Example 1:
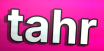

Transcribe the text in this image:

tahr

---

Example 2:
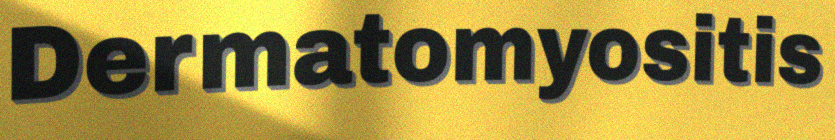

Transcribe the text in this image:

Dermatomyositis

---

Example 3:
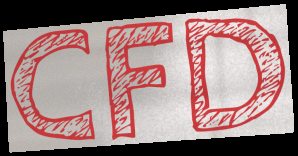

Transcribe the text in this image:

CFD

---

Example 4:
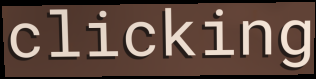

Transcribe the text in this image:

clicking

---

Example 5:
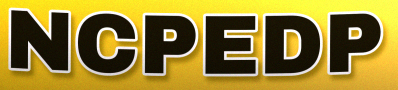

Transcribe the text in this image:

NCPEDP